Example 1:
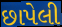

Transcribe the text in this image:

છાપેલી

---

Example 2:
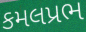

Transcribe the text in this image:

કમલપ્રભ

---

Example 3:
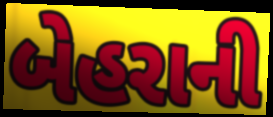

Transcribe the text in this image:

બેહરાની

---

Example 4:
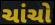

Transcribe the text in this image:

ચાંચો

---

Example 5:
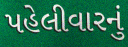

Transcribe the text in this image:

પહેલીવારનું